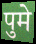
पुमे